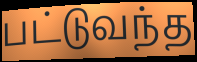
பட்டுவந்த